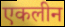
एकलीन